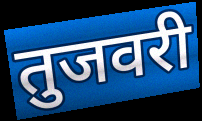
तुजवरी